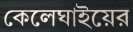
কেলেঘাইয়ের